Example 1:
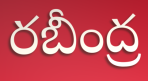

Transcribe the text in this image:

రబీంద్ర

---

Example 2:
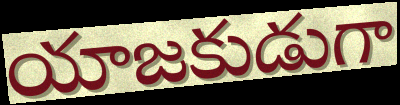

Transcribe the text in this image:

యాజకుడుగా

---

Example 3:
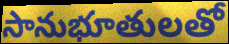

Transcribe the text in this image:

సానుభూతులతో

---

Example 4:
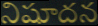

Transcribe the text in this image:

నిషూదన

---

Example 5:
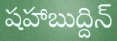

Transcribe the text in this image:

షహాబుద్దిన్